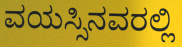
ವಯಸ್ಸಿನವರಲ್ಲಿ